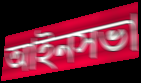
আইনসভা